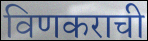
विणकराची